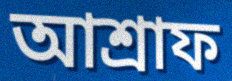
আশ্রাফ